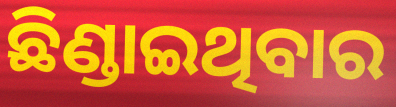
ଛିଣ୍ଡାଇଥିବାର